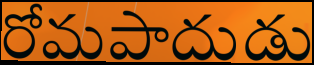
రోమపాదుడు